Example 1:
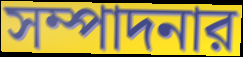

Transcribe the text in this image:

সম্পাদনার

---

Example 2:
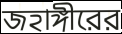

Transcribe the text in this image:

জহাঙ্গীরের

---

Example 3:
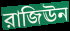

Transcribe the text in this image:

রাজিঊন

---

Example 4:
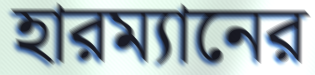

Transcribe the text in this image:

হারম্যানের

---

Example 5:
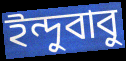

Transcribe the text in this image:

ইন্দুবাবু